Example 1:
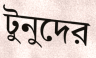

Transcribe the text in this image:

টুনুদের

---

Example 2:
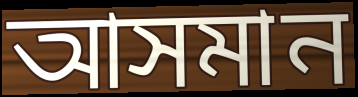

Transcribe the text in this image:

আসমান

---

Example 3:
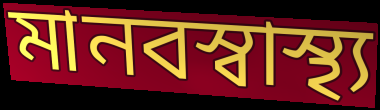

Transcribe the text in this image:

মানবস্বাস্থ্য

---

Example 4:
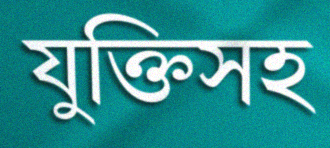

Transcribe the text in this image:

যুক্তিসহ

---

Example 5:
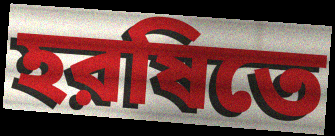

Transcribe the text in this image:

হরষিতে